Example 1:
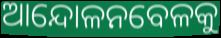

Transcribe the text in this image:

ଆନ୍ଦୋଳନବେଳକୁ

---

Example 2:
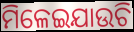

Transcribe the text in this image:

ମିଳେଇଯାଉଚି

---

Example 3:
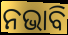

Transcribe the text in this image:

ନଭାବି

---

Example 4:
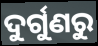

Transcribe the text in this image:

ଦୁର୍ଗୁଣରୁ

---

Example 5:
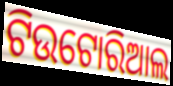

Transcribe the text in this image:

ଟିଉଟୋରିଆଲ